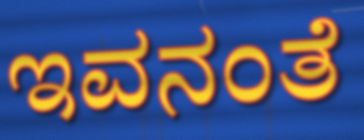
ಇವನಂತೆ